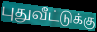
புதுவீட்டுக்கு